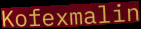
Kofexmalin